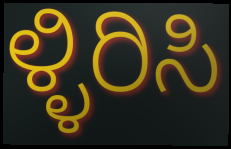
ಳ್ಳಿರಿಸಿ